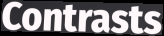
Contrasts